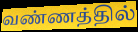
வண்ணத்தில்